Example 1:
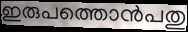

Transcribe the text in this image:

ഇരുപത്തൊൻപതു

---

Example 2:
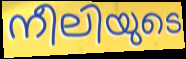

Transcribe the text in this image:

നീലിയുടെ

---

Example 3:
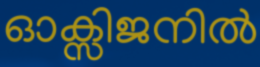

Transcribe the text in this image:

ഓക്സിജനിൽ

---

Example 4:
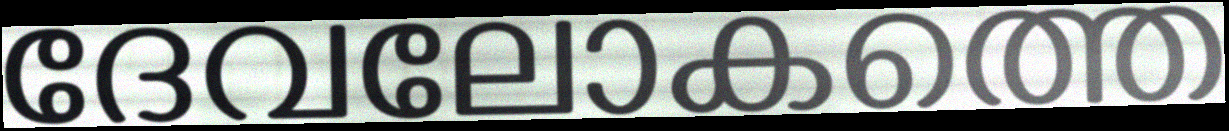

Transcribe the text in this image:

ദേവലോകത്തെ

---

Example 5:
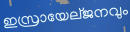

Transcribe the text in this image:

ഇസ്രായേല്ജനവും